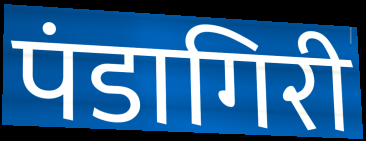
पंडागिरी